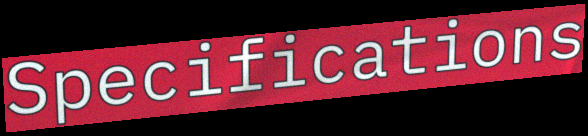
Specifications